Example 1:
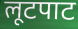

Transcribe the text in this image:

लूटपाट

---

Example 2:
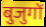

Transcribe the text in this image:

बुजुगों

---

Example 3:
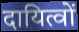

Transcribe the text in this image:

दायित्वों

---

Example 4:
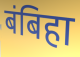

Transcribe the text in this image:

बंबिहा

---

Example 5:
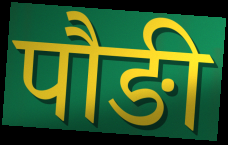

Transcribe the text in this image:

पौङी